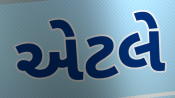
એેટલે